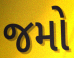
જમો